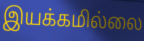
இயக்கமில்லை